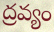
ద్రవ్యం